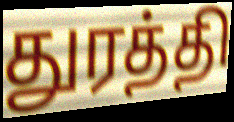
துரத்தி